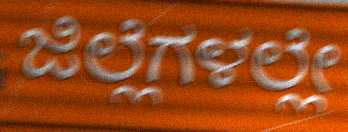
ಜಿಲ್ಲೆಗಳಲ್ಲೇ